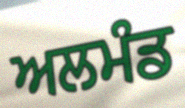
ਅਲਮੰਡ